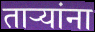
ताऱ्यांना